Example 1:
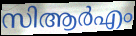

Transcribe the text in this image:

സിആർഎം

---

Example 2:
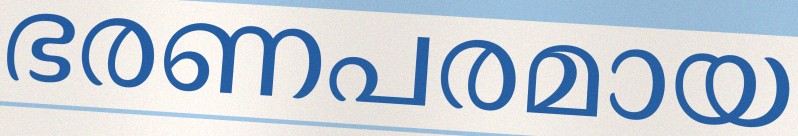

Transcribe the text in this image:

ഭരണപരമായ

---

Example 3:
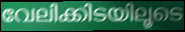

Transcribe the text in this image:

വേലിക്കിടയിലൂടെ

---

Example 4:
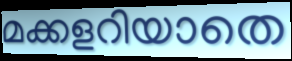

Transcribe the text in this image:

മക്കളറിയാതെ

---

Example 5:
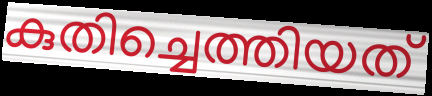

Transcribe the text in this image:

കുതിച്ചെത്തിയത്